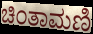
ಚಿಂತಾಮಣಿ